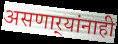
असणार्यांनाही